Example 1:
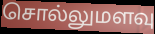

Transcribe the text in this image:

சொல்லுமளவு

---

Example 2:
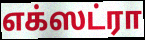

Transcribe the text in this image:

எக்ஸட்ரா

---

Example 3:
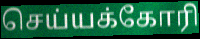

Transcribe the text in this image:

செய்யக்கோரி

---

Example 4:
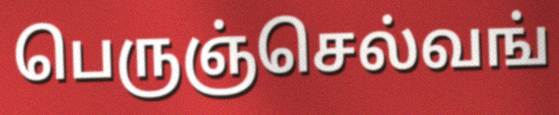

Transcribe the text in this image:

பெருஞ்செல்வங்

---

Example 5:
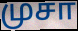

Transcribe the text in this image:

முசா